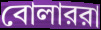
বোলাররা